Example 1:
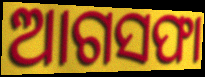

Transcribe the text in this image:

ଆଗସଫା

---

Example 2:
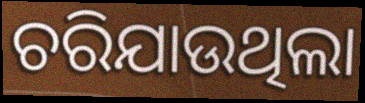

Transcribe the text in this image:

ଚରିଯାଉଥିଲା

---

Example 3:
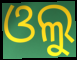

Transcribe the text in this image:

ଓଲୁ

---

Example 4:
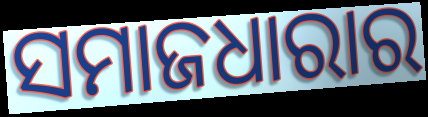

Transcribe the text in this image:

ସମାଜଧାରାର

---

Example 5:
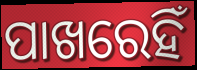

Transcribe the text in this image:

ପାଖରେହିଁ